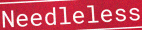
Needleless